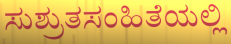
ಸುಶ್ರುತಸಂಹಿತೆಯಲ್ಲಿ